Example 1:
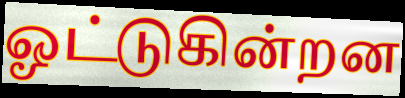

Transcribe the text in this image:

ஓட்டுகின்றன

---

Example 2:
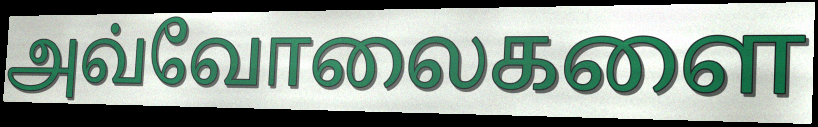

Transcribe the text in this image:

அவ்வோலைகளை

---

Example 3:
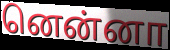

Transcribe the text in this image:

னென்னா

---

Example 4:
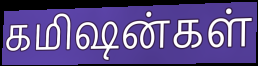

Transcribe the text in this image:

கமிஷன்கள்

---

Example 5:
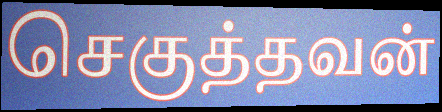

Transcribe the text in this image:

செகுத்தவன்